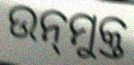
ଉନ୍‍ମୁକ୍ତ